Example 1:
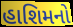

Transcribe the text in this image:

હાશિમનો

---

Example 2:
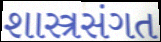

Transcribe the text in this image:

શાસ્ત્રસંગત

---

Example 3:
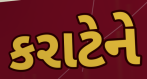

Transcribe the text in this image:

કરાટેને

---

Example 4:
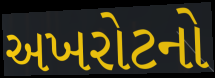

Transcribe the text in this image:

અખરોટનો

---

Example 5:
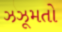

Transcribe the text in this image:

ઝઝૂમતો